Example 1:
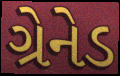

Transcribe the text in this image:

ગ્રેનેડ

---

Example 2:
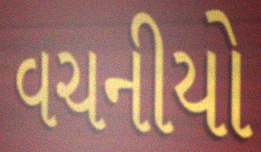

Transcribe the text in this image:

વચનીયો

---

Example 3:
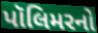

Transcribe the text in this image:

પૉલિમરનો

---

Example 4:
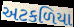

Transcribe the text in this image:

અટકળિયા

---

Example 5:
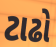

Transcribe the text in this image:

ટાઢો